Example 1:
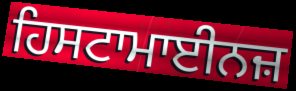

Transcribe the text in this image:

ਹਿਸਟਾਮਾਈਨਜ਼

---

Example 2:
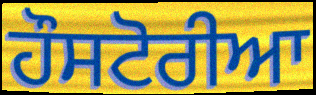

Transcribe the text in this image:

ਹੌਸਟੋਰੀਆ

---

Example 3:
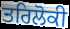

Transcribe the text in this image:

ਤਰਿਲੋਕੀ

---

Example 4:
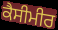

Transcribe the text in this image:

ਕੈਸੀਮੀਰ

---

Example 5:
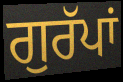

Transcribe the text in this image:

ਗੁਰੱਪਾਂ